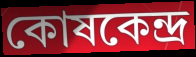
কোষকেন্দ্ৰ